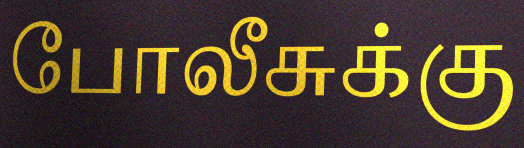
போலீசுக்கு